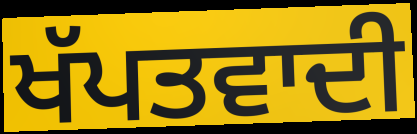
ਖੱਪਤਵਾਦੀ